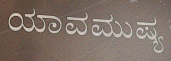
ಯಾವಮುಷ್ಯ